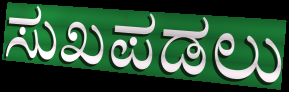
ಸುಖಪಡಲು